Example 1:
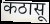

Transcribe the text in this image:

कठासू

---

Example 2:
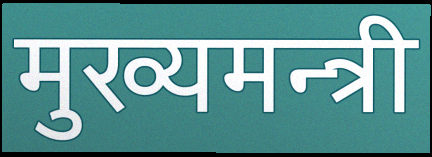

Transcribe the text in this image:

मुख्यमन्त्री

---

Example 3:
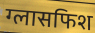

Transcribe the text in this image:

ग्लासफिश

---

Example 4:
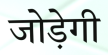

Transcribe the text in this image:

जोड़ेगी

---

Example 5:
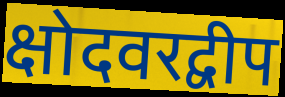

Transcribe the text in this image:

क्षोदवरद्वीप